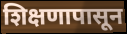
शिक्षणापासून